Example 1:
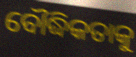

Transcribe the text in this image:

ବୌଦ୍ଧିକତାକୁ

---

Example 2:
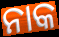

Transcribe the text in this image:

ନାକ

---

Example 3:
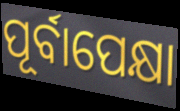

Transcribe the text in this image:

ପୂର୍ବାପେକ୍ଷା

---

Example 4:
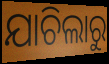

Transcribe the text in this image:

ଯାଚିଲାରୁ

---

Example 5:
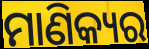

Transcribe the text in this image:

ମାଣିକ୍ୟର